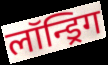
लॉन्ड्रिग